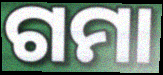
ଗମା